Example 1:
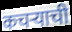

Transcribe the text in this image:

कचर्‍याची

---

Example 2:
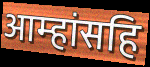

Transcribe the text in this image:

आम्हांसहि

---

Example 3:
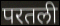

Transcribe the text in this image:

परतली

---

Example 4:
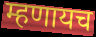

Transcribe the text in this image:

म्हणायच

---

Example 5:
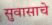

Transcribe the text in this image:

सुवासाचे